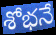
శోభనే